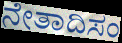
ನೇತಾದಿಸಂ